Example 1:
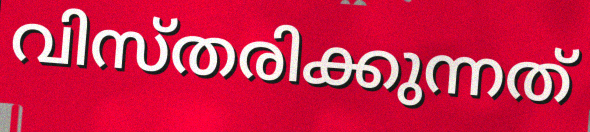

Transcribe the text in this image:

വിസ്തരിക്കുന്നത്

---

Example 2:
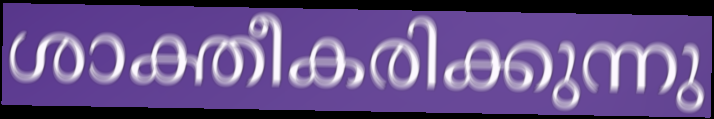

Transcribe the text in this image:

ശാക്തീകരിക്കുന്നു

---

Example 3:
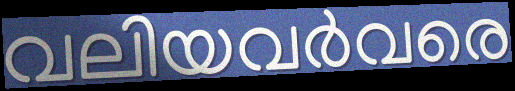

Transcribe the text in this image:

വലിയവർവരെ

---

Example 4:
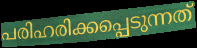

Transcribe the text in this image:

പരിഹരിക്കപ്പെടുന്നത്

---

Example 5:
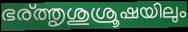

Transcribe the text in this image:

ഭര്ത്തൃശുശ്രൂഷയിലും